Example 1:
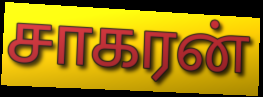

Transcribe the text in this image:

சாகரன்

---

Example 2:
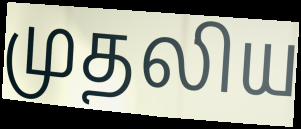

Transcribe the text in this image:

முதலிய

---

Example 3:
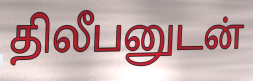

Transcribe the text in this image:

திலீபனுடன்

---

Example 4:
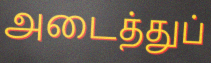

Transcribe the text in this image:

அடைத்துப்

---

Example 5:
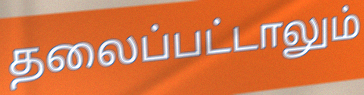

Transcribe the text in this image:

தலைப்பட்டாலும்